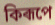
কিৰূপে